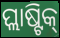
ପ୍ଲାଷ୍ଟିକ୍